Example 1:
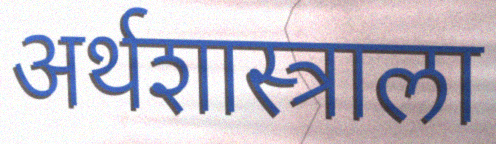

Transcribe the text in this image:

अर्थशास्त्राला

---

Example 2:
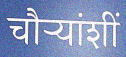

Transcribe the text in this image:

चौर्‍यांशीं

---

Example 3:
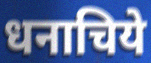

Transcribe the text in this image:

धनाचिये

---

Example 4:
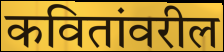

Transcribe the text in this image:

कवितांवरील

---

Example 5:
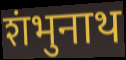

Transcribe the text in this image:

शंभुनाथ